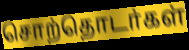
சொற்தொடர்கள்